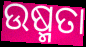
ଉଷ୍ମତା